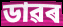
ডাৱৰ